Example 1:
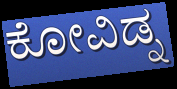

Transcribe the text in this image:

ಕೋವಿಡ್ನ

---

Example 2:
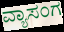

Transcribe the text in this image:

ವ್ಯಾಸಂಗ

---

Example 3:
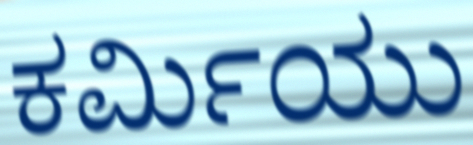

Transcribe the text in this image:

ಕರ್ಮಿಯು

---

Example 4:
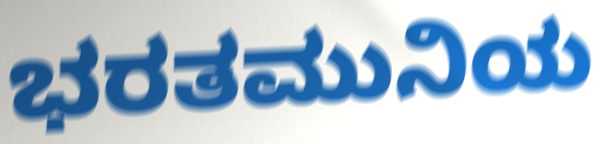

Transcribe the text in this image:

ಭರತಮುನಿಯ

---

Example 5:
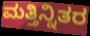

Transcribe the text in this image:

ಮತ್ತಿನ್ನಿತರ